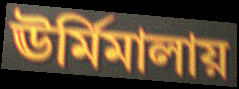
ঊর্মিমালায়